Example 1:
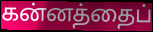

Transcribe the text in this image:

கன்னத்தைப்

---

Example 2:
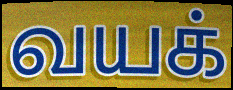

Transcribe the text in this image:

வயக்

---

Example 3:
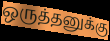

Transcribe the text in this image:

ஒருத்தனுக்கு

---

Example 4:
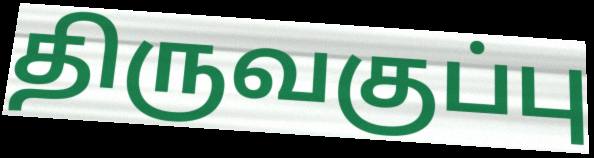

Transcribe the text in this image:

திருவகுப்பு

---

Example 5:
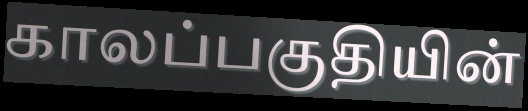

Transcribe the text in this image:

காலப்பகுதியின்